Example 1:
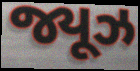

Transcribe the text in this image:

જ્યૂઝ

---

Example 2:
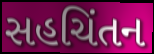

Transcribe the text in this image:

સહચિંતન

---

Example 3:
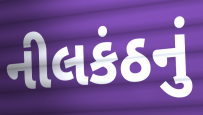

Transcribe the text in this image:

નીલકંઠનું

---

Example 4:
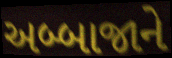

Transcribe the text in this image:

અબ્બાજાને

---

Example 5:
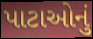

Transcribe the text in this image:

પાટાઓનું